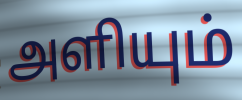
அளியும்